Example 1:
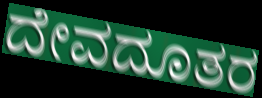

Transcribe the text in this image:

ದೇವದೂತರ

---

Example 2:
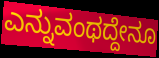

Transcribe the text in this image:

ಎನ್ನುವಂಥದ್ದೇನೂ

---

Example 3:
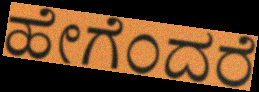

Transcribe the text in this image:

ಹೇಗೆಂದರೆ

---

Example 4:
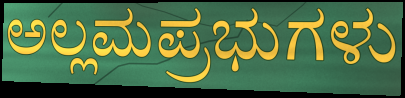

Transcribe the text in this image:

ಅಲ್ಲಮಪ್ರಭುಗಳು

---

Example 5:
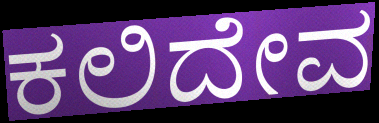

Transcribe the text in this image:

ಕಲಿದೇವ